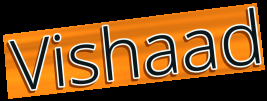
Vishaad